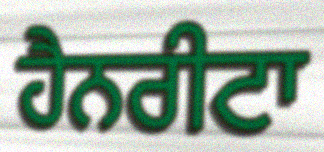
ਹੈਨਰੀਟਾ